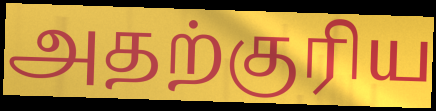
அதற்குரிய